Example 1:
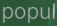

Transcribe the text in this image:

popul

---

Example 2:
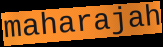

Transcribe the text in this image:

maharajah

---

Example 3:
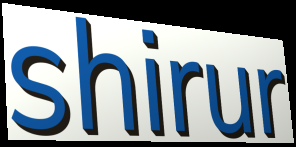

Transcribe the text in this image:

shirur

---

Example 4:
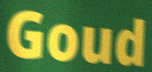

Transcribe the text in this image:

Goud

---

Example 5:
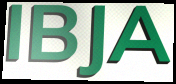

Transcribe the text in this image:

IBJA